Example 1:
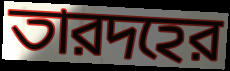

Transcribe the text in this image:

তারদহের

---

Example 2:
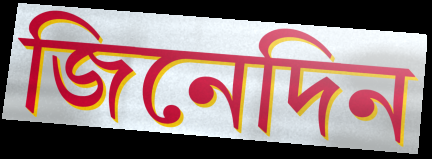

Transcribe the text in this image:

জিনেদিন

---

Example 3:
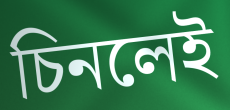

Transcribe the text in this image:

চিনলেই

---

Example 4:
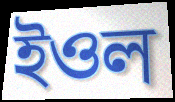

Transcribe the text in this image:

ইওল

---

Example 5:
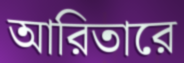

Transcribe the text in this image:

আরিতারে